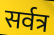
सर्वत्र